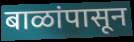
बाळांपासून